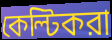
কেল্টিকরা